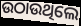
ଉଠାଉଥିଲେ